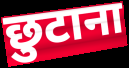
छुटाना